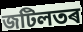
জটিলতৰ